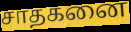
சாதகனை